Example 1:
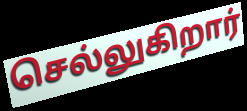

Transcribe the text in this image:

செல்லுகிறார்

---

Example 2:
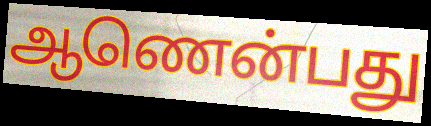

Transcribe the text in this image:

ஆணென்பது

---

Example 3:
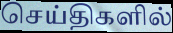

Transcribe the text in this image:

செய்திகளில்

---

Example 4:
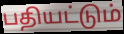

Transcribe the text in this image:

பதியட்டும்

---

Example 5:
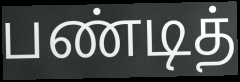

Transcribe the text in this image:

பண்டித்